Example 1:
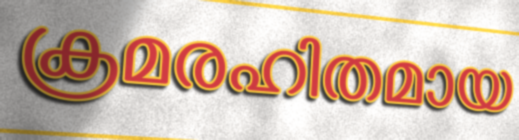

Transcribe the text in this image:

ക്രമരഹിതമായ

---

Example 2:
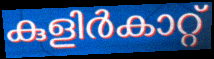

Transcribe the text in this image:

കുളിർകാറ്റ്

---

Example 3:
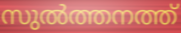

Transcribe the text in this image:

സുൽത്തനത്ത്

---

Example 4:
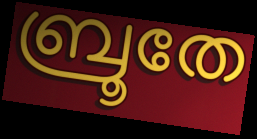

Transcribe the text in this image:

ബ്രൂതേ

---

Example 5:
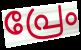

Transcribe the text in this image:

പ്രേം